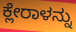
ಕ್ಲೇರಾಳನ್ನು